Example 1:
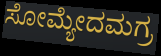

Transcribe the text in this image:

ಸೋಮ್ಯೇದಮಗ್ರ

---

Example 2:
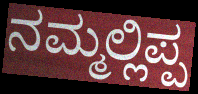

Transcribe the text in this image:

ನಮ್ಮಲ್ಲಿಪ್ಪ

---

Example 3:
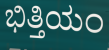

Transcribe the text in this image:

ಭಿತ್ತಿಯಂ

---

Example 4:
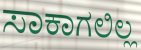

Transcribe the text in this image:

ಸಾಕಾಗಲಿಲ್ಲ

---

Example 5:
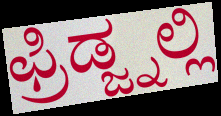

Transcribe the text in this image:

ಫ್ರಿಡ್ಜ್ನಲ್ಲಿ